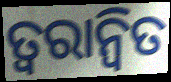
ତ୍ୱରାନ୍ଵିତ